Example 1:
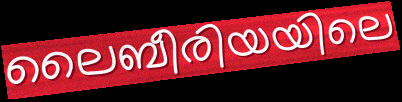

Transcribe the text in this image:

ലൈബീരിയയിലെ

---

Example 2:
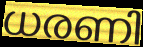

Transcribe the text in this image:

ധരണി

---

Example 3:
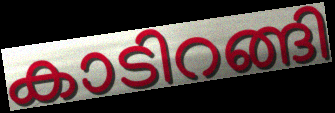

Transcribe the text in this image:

കാടിറങ്ങി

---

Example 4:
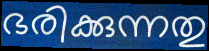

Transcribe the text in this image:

ഭരിക്കുന്നതു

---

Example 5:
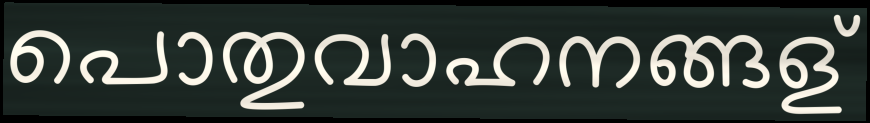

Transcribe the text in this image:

പൊതുവാഹനങ്ങള്